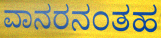
ವಾನರನಂತಹ